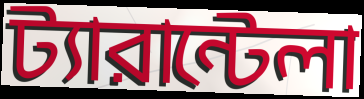
ট্যারান্টেলা